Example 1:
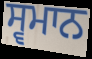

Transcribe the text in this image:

ਸ੍ਵਮਾਨ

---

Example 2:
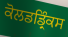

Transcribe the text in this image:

ਕੋਲਡਡ੍ਰਿੰਕਸ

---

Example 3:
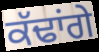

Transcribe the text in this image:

ਕੱਢਾਂਗੇ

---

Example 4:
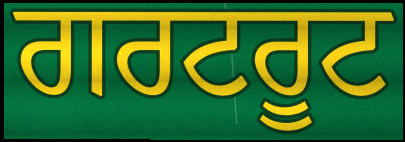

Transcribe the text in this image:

ਗਰਟਰੂਟ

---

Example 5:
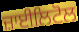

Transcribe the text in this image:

ਜ਼ਾਈਲਿਟੋਲ